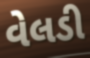
વેલડી